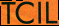
TCIL